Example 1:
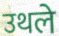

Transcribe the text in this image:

उथले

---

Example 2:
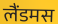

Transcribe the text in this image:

लैंडमस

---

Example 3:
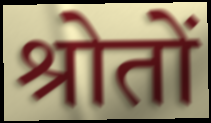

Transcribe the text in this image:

श्रोतों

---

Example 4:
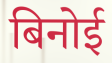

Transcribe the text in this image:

बिनोई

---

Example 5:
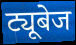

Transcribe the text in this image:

ट्यूबेज